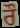
ਰੌ